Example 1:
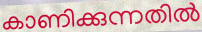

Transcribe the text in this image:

കാണിക്കുന്നതിൽ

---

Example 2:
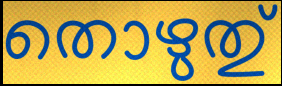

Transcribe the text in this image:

തൊഴുതു്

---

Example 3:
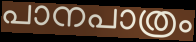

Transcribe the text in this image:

പാനപാത്രം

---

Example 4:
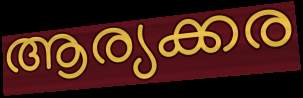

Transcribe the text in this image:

ആര്യക്കര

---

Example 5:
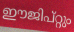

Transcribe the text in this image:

ഈജിപ്റ്റും